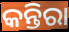
କନ୍ତିରା